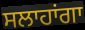
ਸਲਾਹਾਂਗਾ